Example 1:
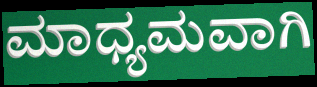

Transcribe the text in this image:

ಮಾಧ್ಯಮವಾಗಿ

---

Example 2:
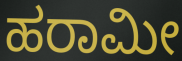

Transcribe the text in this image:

ಹರಾಮೀ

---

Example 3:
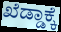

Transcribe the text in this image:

ಖೆಡ್ಡಾಕ್ಕೆ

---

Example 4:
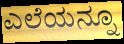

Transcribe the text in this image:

ಎಲೆಯನ್ನೂ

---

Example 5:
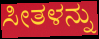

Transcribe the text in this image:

ಸೀತಳನ್ನು